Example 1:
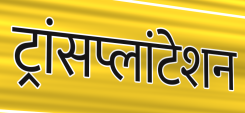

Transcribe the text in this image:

ट्रांसप्लांटेशन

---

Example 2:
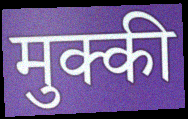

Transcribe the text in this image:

मुक्की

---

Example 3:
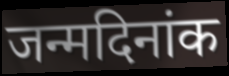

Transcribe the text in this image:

जन्मदिनांक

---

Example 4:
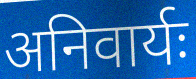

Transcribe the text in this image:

अनिवार्यः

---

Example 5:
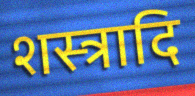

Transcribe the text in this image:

शस्त्रादि